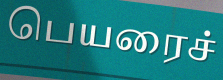
பெயரைச்